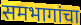
समभागांचा